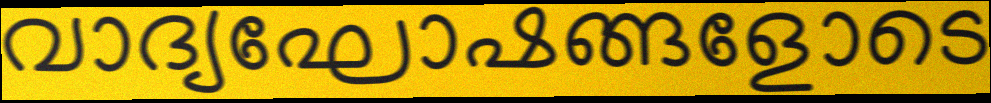
വാദ്യഘോഷങ്ങളോടെ